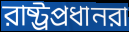
রাষ্ট্রপ্রধানরা